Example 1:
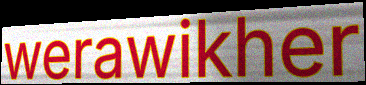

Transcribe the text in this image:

werawikher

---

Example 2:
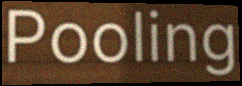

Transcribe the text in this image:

Pooling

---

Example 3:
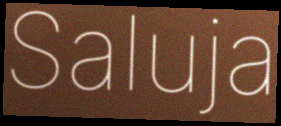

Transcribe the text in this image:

Saluja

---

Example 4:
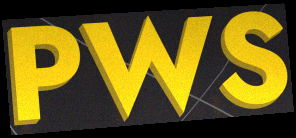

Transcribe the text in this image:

PWS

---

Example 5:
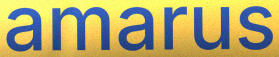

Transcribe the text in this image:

amarus